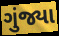
ગુંજ્યા